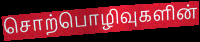
சொற்பொழிவுகளின்